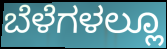
ಬೆಳೆಗಳಲ್ಲೂ